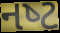
નષ્‍ટ